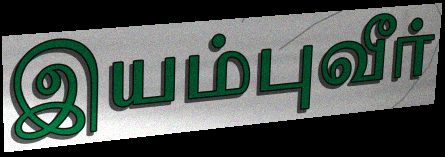
இயம்புவீர்